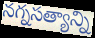
నగ్నసత్యాన్ని